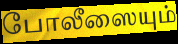
போலீஸையும்